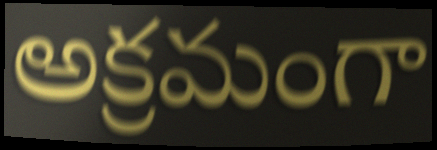
అక్రమంగా